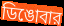
ডিঙোবার